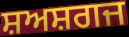
ਸ਼ਅਸ਼ਗਜ